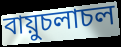
বায়ুচলাচল